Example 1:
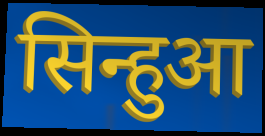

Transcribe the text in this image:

सिन्हुआ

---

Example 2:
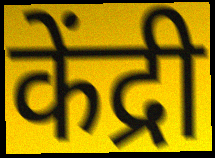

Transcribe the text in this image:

केंद्री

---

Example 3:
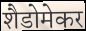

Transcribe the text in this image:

शैडोमेकर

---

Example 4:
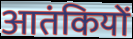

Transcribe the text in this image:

आतंकियों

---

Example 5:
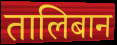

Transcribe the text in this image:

तालिबान